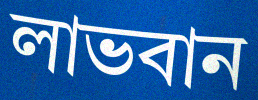
লাভবান